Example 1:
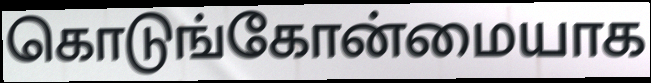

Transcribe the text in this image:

கொடுங்கோன்மையாக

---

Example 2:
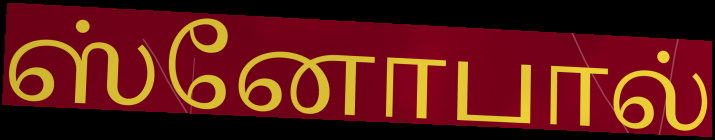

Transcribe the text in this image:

ஸ்னோபால்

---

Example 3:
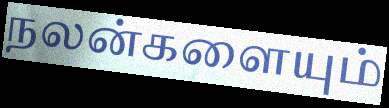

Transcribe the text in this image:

நலன்களையும்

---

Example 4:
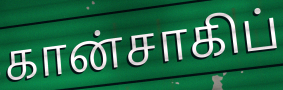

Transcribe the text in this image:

கான்சாகிப்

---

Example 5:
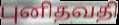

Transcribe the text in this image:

புனிதவதி